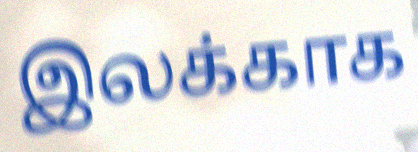
இலக்காக